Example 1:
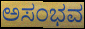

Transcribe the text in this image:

ಅಸಂಭವ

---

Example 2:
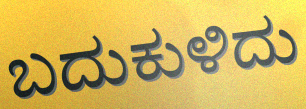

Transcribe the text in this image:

ಬದುಕುಳಿದು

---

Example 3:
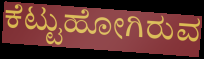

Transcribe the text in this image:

ಕೆಟ್ಟುಹೋಗಿರುವ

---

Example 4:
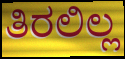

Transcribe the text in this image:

ತಿರಲಿಲ್ಲ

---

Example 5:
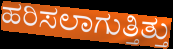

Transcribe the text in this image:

ಹರಿಸಲಾಗುತ್ತಿತ್ತು